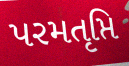
પરમતૃપ્તિ